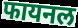
फायनल